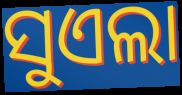
ସୁଏଲା